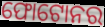
ଫୋଟୋନର